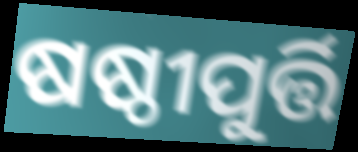
ଷଷ୍ଠୀପୁର୍ତ୍ତି